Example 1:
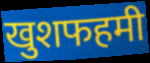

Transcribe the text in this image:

खुशफहमी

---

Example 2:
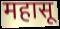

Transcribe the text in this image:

महासू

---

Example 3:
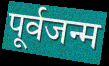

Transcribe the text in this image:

पूर्वजन्‍म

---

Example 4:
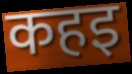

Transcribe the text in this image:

कहइ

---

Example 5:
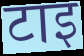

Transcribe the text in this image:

टाइ